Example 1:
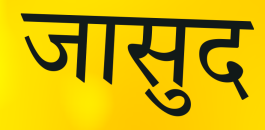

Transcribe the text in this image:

जासुद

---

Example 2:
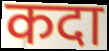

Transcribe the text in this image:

कदा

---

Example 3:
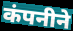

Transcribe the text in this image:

कंपनीने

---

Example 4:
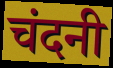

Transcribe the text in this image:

चंदनी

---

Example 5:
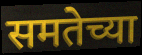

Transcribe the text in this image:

समतेच्या